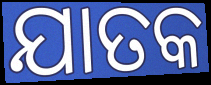
ଯାତକ